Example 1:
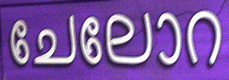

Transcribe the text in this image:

ചേലോറ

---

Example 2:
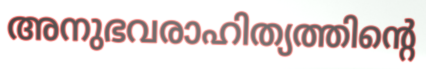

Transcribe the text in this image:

അനുഭവരാഹിത്യത്തിന്റെ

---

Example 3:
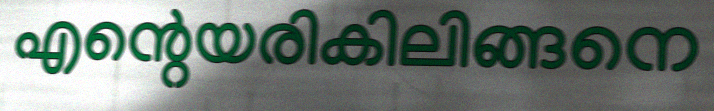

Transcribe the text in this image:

എന്റെയരികിലിങ്ങനെ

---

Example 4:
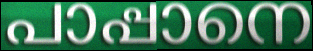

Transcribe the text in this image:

പാപ്പാനെ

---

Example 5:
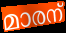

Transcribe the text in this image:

മാരന്